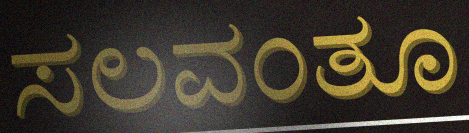
ಸಲವಂತೂ